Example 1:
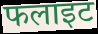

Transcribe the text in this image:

फलाइट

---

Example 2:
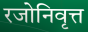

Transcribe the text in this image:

रजोनिवृत्त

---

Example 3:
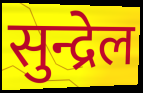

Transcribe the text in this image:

सुन्द्रेल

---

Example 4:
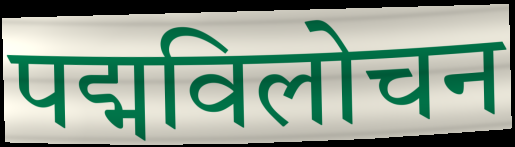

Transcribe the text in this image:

पद्मविलोचन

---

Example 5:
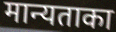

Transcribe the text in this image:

मान्यताका